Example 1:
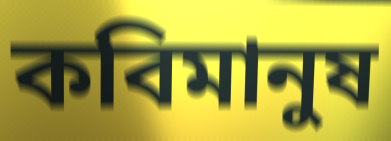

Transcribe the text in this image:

কবিমানুষ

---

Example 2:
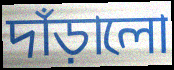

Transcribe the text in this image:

দাঁড়ালো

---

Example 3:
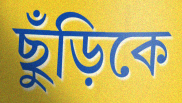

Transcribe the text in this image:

ছুঁড়িকে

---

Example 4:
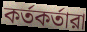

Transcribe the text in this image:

কর্তকর্তারা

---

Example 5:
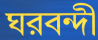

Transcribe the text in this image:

ঘরবন্দী